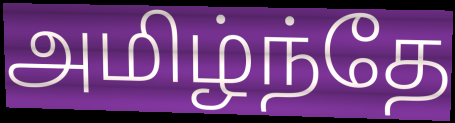
அமிழ்ந்தே